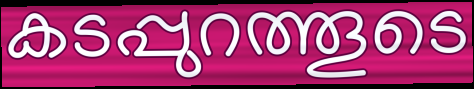
കടപ്പുറത്തൂടെ